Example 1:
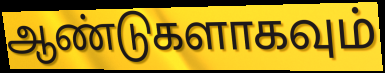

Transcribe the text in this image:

ஆண்டுகளாகவும்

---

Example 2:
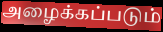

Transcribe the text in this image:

அழைக்கப்படும்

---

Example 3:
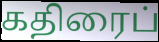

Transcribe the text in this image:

கதிரைப்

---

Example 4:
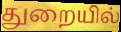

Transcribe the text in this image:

துறையில்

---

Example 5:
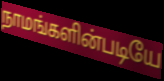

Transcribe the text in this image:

நாமங்களின்படியே